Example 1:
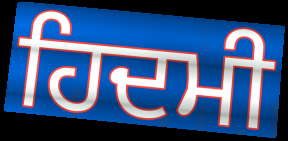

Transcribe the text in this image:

ਹਿਦਮੀ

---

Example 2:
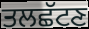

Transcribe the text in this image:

ਤਲਛੱਟਣ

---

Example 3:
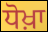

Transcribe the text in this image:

ਧੋਖ਼ਾ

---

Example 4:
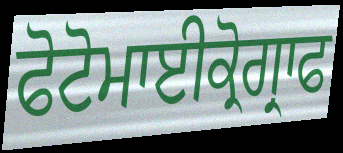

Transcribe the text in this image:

ਫੋਟੋਮਾਈਕ੍ਰੋਗ੍ਰਾਫ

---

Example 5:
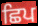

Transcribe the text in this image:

ਛਿਪ